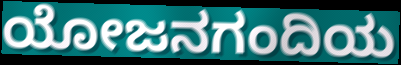
ಯೋಜನಗಂದಿಯ